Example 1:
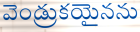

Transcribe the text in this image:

వెండ్రుకయైనను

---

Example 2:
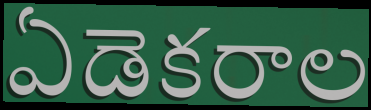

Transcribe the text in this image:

ఏడెకరాల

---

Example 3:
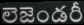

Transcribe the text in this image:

లెజెండరీ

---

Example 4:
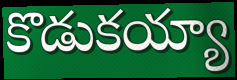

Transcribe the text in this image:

కొడుకయ్యా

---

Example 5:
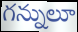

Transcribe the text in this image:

గన్నులూ